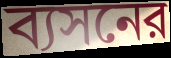
ব্যসনের